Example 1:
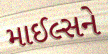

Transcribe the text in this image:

માઈલ્સને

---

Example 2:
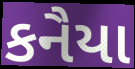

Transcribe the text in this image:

કનૈયા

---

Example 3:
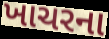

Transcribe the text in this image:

ખાચરના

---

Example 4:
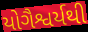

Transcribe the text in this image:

યોગૈશ્વર્યથી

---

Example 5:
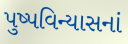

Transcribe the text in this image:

પુષ્પવિન્યાસનાં